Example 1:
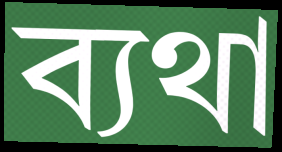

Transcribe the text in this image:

ব্যথা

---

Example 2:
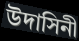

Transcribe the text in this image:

উদাসিনী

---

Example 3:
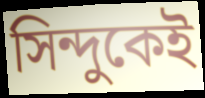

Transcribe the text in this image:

সিন্দুকেই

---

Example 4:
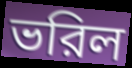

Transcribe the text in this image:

ভরিল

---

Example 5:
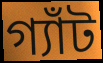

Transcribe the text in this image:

গ্যাঁট